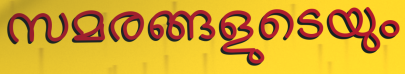
സമരങ്ങളുടെയും